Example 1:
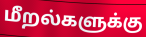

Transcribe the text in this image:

மீறல்களுக்கு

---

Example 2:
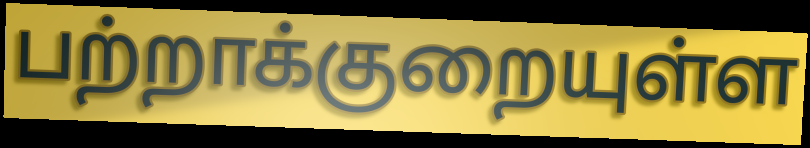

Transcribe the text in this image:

பற்றாக்குறையுள்ள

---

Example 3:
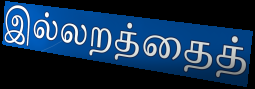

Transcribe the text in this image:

இல்லறத்தைத்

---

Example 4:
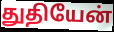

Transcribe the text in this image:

துதியேன்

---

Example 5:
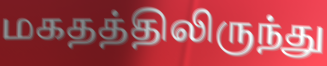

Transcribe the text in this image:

மகதத்திலிருந்து